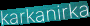
karkanirka